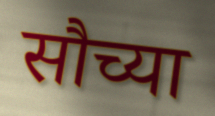
सौच्या